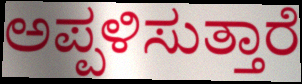
ಅಪ್ಪಳಿಸುತ್ತಾರೆ